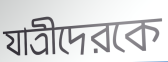
যাত্রীদেরকে